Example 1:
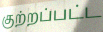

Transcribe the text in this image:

குற்றப்பட்ட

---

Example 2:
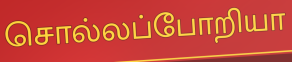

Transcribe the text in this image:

சொல்லப்போறியா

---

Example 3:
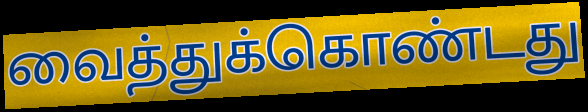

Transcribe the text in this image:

வைத்துக்கொண்டது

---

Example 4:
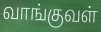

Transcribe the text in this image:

வாங்குவள்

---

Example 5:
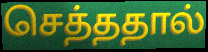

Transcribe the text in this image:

செத்ததால்